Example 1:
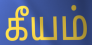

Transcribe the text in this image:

கீயம்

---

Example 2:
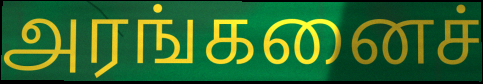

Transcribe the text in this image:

அரங்கனைச்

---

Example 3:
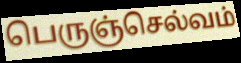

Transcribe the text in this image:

பெருஞ்செல்வம்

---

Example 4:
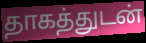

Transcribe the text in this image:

தாகத்துடன்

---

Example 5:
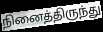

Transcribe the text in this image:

நினைத்திருந்து